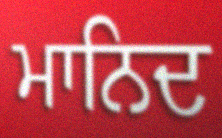
ਮਾਨਿਦ